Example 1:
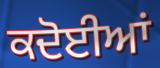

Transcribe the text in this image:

ਕਦੋਈਆਂ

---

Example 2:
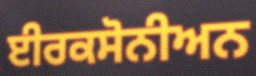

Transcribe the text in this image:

ਈਰਕਸੋਨੀਅਨ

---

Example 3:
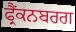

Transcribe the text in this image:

ਫ੍ਰੈਂਕਨਬਰਗ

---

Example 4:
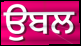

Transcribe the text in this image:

ਉਬਲ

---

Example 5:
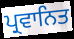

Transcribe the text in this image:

ਪ੍ਰਵਾਨਿਤ